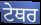
ਟੇਥਰ